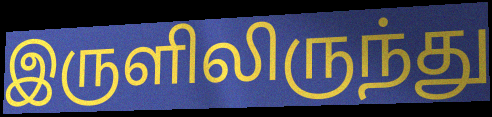
இருளிலிருந்து